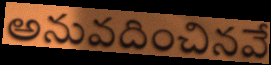
అనువదించినవే